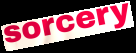
sorcery